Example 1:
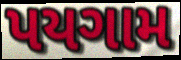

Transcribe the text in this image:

પયગામ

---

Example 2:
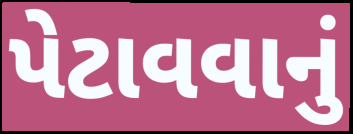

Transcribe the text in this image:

પેટાવવાનું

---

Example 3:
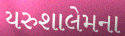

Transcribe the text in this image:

યરુશાલેમના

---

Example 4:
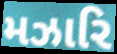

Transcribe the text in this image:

મઝારિ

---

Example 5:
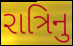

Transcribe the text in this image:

રાત્રિનુ